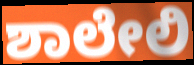
ಶಾಲೇಲಿ